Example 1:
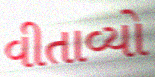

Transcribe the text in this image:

વીતાવ્યો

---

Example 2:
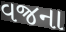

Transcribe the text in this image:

વજ્રના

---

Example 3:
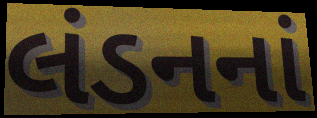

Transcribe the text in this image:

લંડનનાં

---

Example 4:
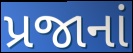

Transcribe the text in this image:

પ્રજાનાં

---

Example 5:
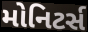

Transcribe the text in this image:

મોનિટર્સ